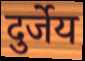
दुर्जेय